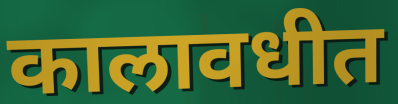
कालावधीत